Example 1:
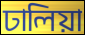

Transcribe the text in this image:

ঢালিয়া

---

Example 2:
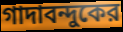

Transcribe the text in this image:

গাদাবন্দুকের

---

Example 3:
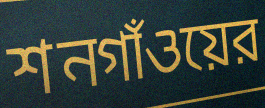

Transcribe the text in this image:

শনগাঁওয়ের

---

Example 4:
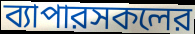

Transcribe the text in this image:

ব্যাপারসকলের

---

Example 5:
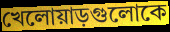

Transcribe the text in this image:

খেলোয়াড়গুলোকে